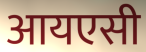
आयएसी